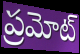
ప్రమోట్